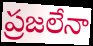
ప్రజలేనా